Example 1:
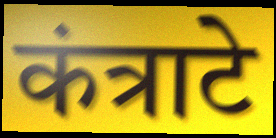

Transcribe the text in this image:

कंत्राटे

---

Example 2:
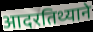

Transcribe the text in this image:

आदरतिथ्याने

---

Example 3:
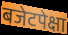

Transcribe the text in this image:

बजेटपेक्षा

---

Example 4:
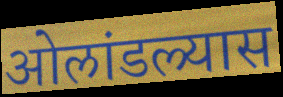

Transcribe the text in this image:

ओलांडल्यास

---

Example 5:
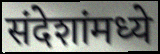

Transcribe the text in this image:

संदेशांमध्ये